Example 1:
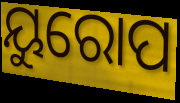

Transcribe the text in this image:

ୟୁରୋପ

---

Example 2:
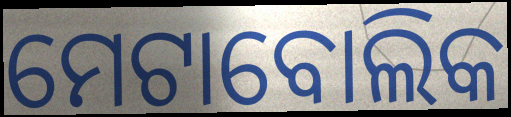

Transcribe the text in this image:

ମେଟାବୋଲିକ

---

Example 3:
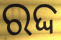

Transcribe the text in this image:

ରଦ୍ଦ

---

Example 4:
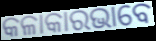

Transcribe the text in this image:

କଳାକାରଭାବେ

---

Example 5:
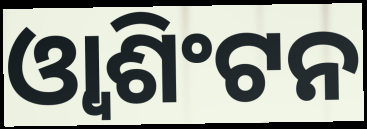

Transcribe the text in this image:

ଓ୍ୱାଶିଂଟନ